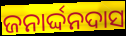
ଜନାର୍ଦ୍ଦନଦାସ